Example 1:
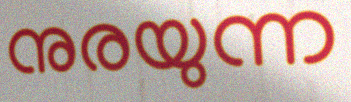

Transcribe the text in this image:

നുരയുന്ന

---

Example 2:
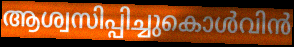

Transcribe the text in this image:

ആശ്വസിപ്പിച്ചുകൊൾവിൻ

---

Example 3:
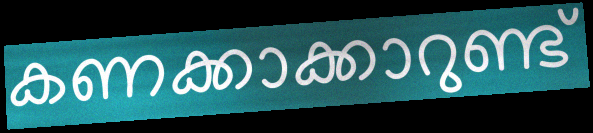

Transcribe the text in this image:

കണക്കാക്കാറുണ്ട്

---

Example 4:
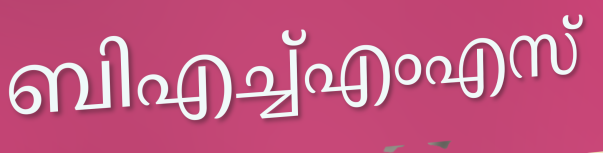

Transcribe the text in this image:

ബിഎച്ച്എംഎസ്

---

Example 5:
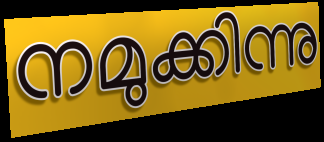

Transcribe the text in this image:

നമുക്കിന്നു